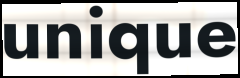
unique